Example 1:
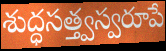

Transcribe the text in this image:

శుద్ధసత్త్వస్వరూపే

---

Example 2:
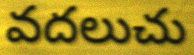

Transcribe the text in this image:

వదలుచు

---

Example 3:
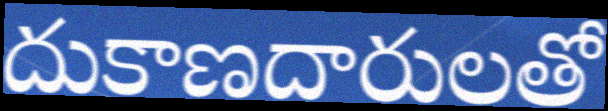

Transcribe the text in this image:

దుకాణదారులతో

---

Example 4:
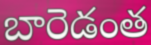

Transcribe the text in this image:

బారెడంత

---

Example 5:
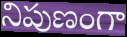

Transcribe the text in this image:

నిపుణంగా